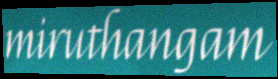
miruthangam